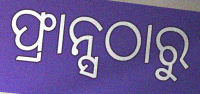
ଫ୍ରାନ୍ସଠାରୁ